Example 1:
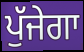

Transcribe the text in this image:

ਪੁੱਜੇਗਾ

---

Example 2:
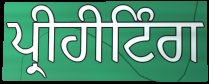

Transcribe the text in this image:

ਪ੍ਰੀਹੀਟਿੰਗ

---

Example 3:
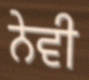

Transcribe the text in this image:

ਨੇਵੀ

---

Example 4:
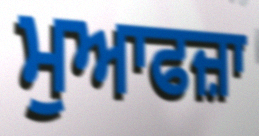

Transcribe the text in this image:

ਮੁਆਫਜ਼ਾ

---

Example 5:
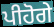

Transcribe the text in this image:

ਪੀਹੋਗੇ